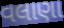
વલાણા